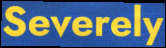
Severely